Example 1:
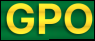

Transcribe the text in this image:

GPO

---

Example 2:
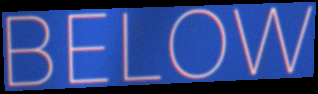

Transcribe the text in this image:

BELOW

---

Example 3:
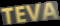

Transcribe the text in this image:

TEVA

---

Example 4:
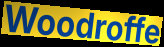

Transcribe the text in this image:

Woodroffe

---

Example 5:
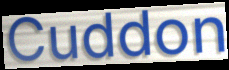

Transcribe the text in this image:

Cuddon